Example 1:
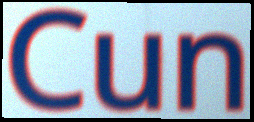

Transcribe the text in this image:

Cun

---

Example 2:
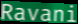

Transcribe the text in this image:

Ravani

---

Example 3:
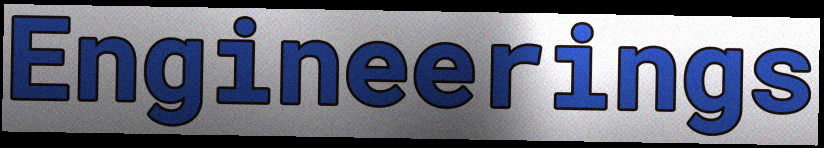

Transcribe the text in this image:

Engineerings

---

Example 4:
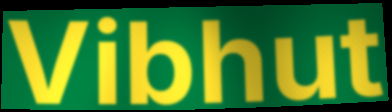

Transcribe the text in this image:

Vibhut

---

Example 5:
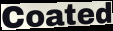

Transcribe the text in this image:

Coated